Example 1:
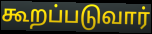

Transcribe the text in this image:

கூறப்படுவார்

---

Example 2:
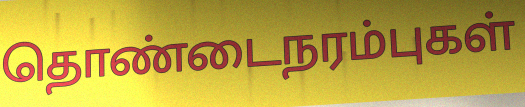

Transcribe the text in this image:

தொண்டைநரம்புகள்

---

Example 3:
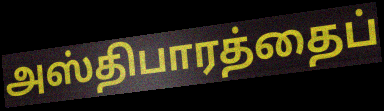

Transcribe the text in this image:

அஸ்திபாரத்தைப்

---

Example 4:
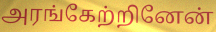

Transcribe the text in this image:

அரங்கேற்றினேன்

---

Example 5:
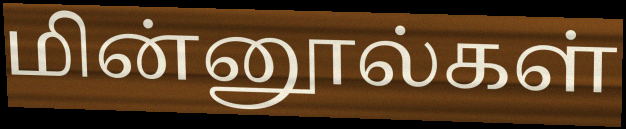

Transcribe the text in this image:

மின்னூல்கள்